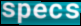
specs